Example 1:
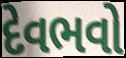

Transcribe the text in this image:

દેવભવો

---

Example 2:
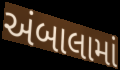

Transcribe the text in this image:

અંબાલામાં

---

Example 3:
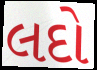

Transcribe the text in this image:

લદો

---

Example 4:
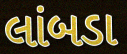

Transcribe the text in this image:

લાંબડા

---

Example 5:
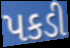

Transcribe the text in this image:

પકડી